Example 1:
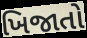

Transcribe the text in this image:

ખિજાતો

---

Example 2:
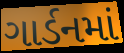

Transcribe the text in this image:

ગાર્ડનમાં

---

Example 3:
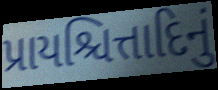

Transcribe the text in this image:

પ્રાયશ્ચિત્તાદિનું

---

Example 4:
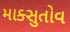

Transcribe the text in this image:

માક્સુતોવ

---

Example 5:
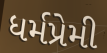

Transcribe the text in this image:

ધર્મપ્રેમી